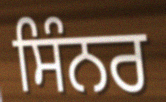
ਸਿੰਨਰ